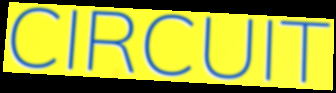
CIRCUIT